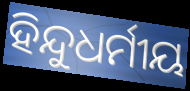
ହିନ୍ଦୁଧର୍ମୀୟ